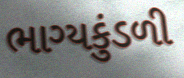
ભાગ્યકુંડળી